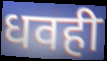
धवही